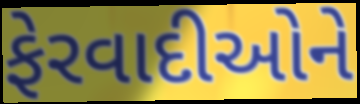
ફેરવાદીઓને